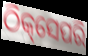
ଠିକ୍‌ସେପରି